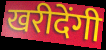
खरीदेंगी